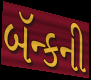
બૅન્કની